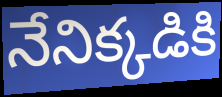
నేనిక్కడికి